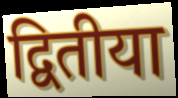
द्वितीया